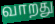
வாறது